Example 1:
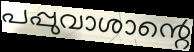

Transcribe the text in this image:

പപ്പുവാശാന്റെ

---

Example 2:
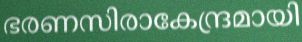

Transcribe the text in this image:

ഭരണസിരാകേന്ദ്രമായി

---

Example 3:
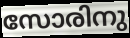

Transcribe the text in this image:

സോരിനു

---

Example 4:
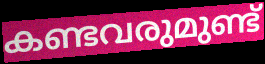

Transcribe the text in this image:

കണ്ടവരുമുണ്ട്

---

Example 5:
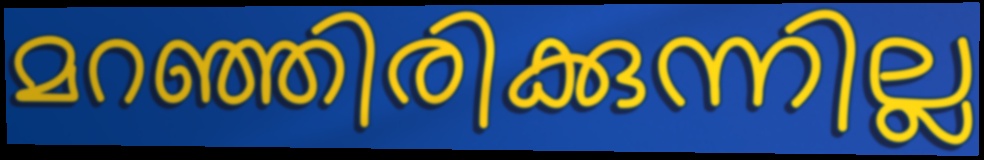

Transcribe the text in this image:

മറഞ്ഞിരിക്കുന്നില്ല